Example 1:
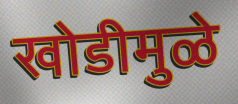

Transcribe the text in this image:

खोडीमुळे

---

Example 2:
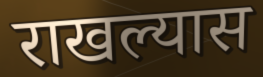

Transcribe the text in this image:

राखल्यास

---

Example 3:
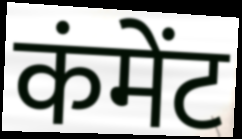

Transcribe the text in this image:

कंमेंट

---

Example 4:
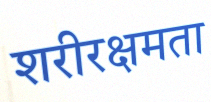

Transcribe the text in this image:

शरीरक्षमता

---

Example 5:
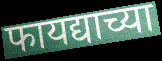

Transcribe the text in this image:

फायद्याच्या